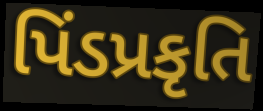
પિંડપ્રકૃતિ